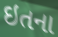
ઇતના